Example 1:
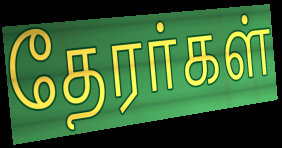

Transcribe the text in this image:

தேரர்கள்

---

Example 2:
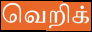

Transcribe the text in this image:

வெறிக்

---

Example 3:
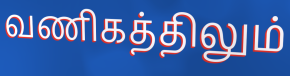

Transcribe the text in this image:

வணிகத்திலும்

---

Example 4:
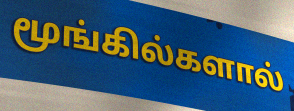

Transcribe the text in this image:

மூங்கில்களால்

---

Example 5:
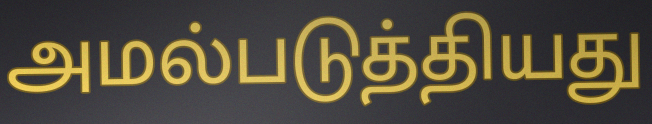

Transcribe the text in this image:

அமல்படுத்தியது